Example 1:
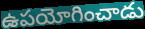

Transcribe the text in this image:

ఉపయోగించాడు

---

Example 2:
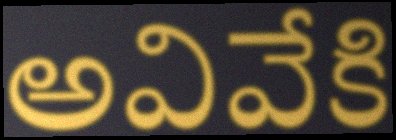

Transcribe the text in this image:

అవివేకి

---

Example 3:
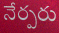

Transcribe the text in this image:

నేర్పరు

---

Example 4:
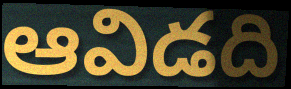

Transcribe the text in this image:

ఆవిడది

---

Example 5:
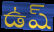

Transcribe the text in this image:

ఉష్